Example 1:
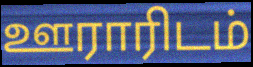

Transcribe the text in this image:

ஊராரிடம்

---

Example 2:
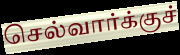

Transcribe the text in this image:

செல்வார்க்குச்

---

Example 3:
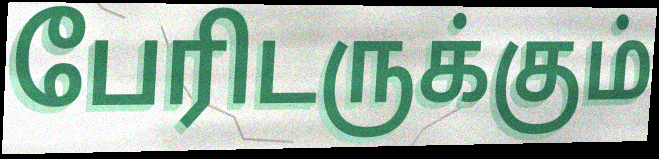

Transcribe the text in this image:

பேரிடருக்கும்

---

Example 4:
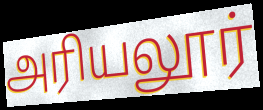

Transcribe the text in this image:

அரியலூர்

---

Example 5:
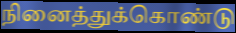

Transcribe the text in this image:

நினைத்துக்கொண்டு